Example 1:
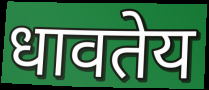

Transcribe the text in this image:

धावतेय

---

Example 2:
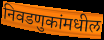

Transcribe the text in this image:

निवडणुकांमधील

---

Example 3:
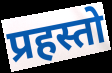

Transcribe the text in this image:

प्रहस्तो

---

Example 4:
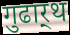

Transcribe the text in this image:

गुढार्थ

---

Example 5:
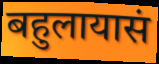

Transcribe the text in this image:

बहुलायासं